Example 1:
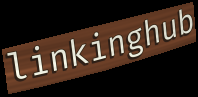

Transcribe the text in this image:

linkinghub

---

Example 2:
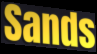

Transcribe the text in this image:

Sands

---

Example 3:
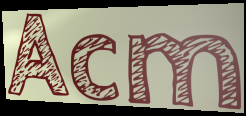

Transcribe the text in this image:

Acm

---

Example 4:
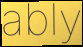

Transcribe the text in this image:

ably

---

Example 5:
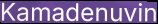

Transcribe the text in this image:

Kamadenuvin